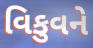
વિકુવને